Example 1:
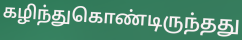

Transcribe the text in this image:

கழிந்துகொண்டிருந்தது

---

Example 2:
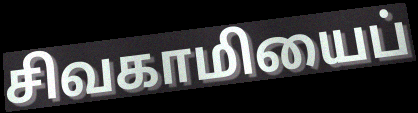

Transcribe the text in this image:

சிவகாமியைப்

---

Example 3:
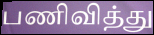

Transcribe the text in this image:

பணிவித்து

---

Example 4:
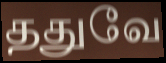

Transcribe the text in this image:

ததுவே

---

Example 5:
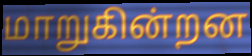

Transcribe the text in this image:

மாறுகின்றன